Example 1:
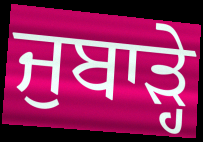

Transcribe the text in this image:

ਜੁਬਾੜ੍ਹੇ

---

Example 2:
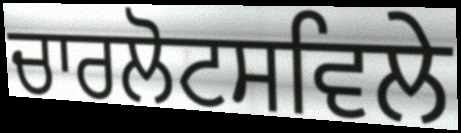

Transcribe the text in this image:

ਚਾਰਲੋਟਸਵਿਲੇ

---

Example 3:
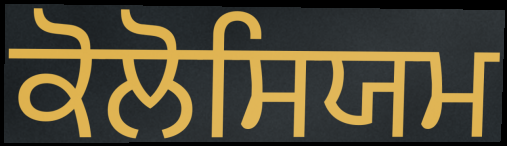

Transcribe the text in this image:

ਕੋਲੋਸਿਯਮ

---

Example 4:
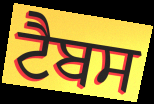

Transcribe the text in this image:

ਟੈਬਸ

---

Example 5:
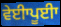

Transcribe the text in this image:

ਵੇਈਾਪੂਈਾ